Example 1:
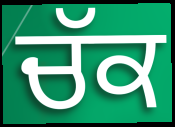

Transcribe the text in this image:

ਚੱਕ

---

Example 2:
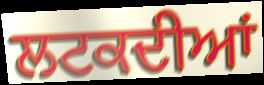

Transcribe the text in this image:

ਲਟਕਦੀਆਂ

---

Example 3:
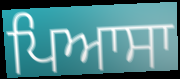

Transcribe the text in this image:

ਪਿਆਸਾ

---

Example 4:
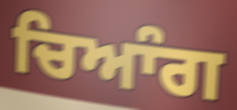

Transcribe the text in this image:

ਚਿਆੰਗ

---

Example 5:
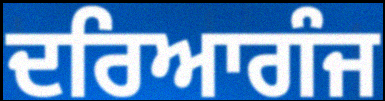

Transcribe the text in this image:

ਦਰਿਆਗੰਜ